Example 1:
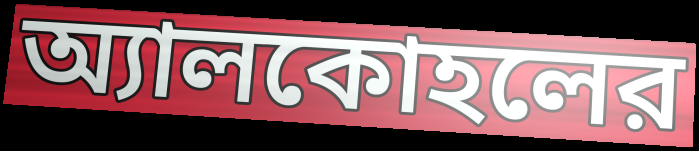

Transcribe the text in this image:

অ্যালকোহলের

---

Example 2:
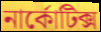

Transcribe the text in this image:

নার্কোটিক্স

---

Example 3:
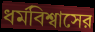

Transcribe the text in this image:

ধর্মবিশ্বাসের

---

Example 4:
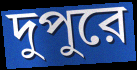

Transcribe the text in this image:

দুপুরে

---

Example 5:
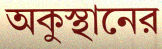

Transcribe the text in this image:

অকুস্থানের